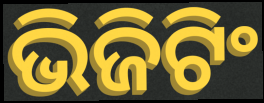
ଭିଜିଟିଂ